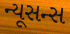
ન્યૂસન્સ